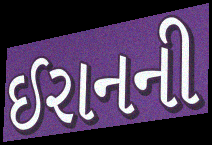
ઈરાનની